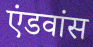
एंडवांस